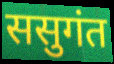
ससुगंत